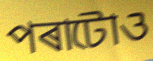
পৰাটোও